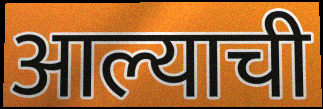
आल्याची